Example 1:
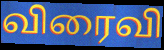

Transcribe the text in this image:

விரைவி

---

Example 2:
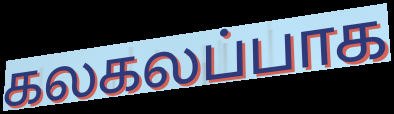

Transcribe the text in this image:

கலகலப்பாக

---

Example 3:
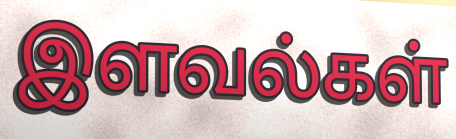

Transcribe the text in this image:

இளவல்கள்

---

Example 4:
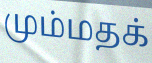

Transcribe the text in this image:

மும்மதக்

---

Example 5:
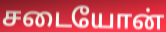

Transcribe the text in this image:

சடையோன்